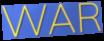
WAR